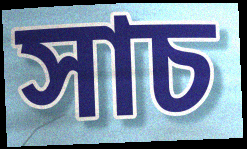
সাচ